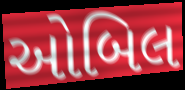
ઓબિલ